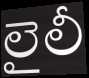
లైలీ